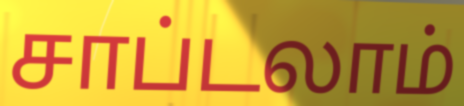
சாப்டலாம்